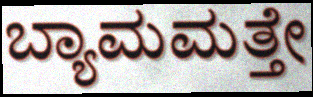
ಬ್ಯಾಮಮತ್ತೇ